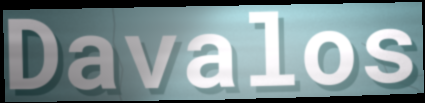
Davalos